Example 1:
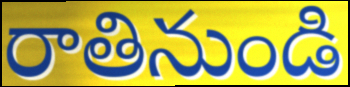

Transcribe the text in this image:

రాతినుండి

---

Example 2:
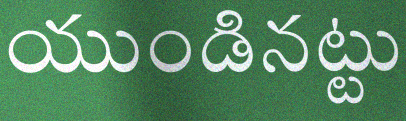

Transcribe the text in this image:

యుండినట్టు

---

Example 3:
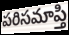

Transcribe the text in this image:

పరిసమాప్తి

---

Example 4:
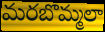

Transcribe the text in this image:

మరబొమ్మలా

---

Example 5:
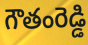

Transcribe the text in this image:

గౌతంరెడ్డి